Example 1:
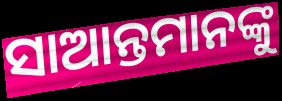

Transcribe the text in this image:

ସାଆନ୍ତମାନଙ୍କୁ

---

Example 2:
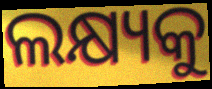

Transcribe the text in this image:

ଲକ୍ଷ୍ୟକୁ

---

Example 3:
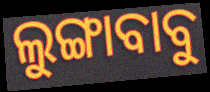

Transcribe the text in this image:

ଲୁଙ୍ଗାବାବୁ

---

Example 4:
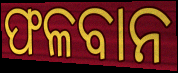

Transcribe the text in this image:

ଫଳବାନ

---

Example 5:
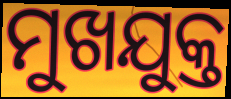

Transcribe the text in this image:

ମୁଖଯୁକ୍ତ